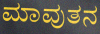
ಮಾವುತನ